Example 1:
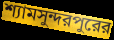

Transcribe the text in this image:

শ্যামসুন্দরপুরের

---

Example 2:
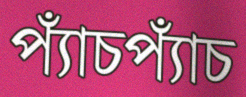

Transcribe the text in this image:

প্যাঁচপ্যাঁচ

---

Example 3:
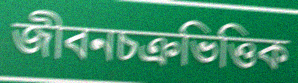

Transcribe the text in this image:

জীবনচক্রভিত্তিক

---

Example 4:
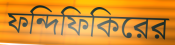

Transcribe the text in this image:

ফন্দিফিকিরের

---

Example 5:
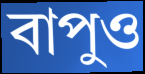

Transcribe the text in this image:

বাপুও